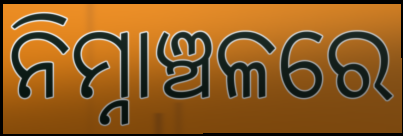
ନିମ୍ନାଞ୍ଚଳରେ